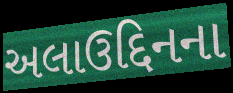
અલાઉદ્દિનના